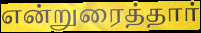
என்றுரைத்தார்